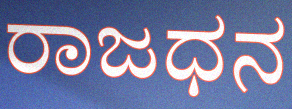
ರಾಜಧನ